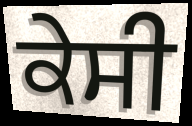
ਕੇਸੀ